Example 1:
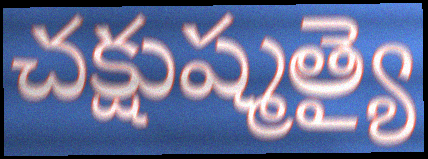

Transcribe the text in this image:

చక్షుష్మత్యై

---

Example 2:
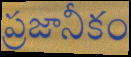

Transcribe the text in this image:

ప్రజానీకం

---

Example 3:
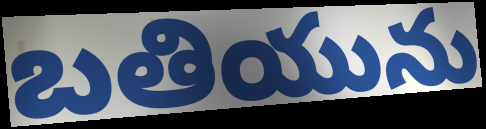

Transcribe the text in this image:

బతియును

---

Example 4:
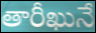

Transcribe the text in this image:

తారీఖునే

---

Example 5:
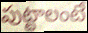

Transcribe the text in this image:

పుట్టాలంటే